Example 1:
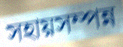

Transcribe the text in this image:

সহায়সম্পন্ন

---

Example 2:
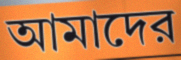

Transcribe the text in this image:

আমাদের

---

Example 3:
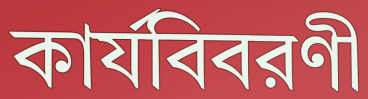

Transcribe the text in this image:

কার্যবিবরণী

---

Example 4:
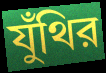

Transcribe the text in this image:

যুঁথির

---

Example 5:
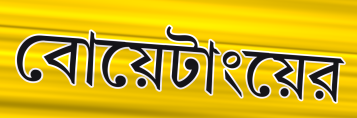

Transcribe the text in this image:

বোয়েটাংয়ের